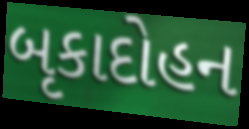
બૃકાદોહન